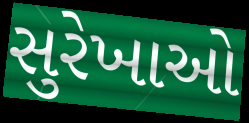
સુરેખાઓ